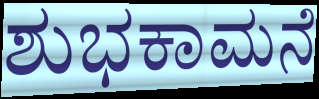
ಶುಭಕಾಮನೆ